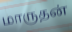
மாருதன்